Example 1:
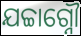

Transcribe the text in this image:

ଯଚ୍ଚାଗ୍ନୌ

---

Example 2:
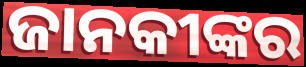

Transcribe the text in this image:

ଜାନକୀଙ୍କର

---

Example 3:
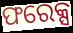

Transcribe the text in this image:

ଫରେକ୍ସ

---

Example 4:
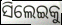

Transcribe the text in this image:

ସିଲେଇକୁ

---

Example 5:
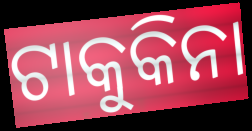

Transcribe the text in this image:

ଟାକୁକିନା